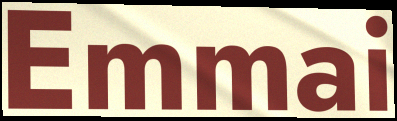
Emmai